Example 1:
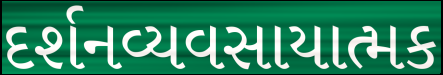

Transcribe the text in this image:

દર્શનવ્યવસાયાત્મક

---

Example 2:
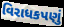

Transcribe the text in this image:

વિરાધકપણું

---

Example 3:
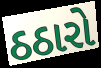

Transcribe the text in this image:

ઠઠારો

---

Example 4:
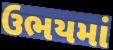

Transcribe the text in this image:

ઉભયમાં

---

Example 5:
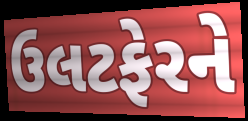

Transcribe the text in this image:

ઉલટફેરને